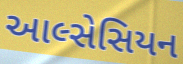
આલ્સેસિયન